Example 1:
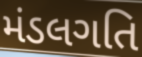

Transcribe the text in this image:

મંડલગતિ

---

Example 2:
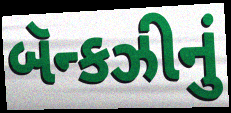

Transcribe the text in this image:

બૅન્કઝીનું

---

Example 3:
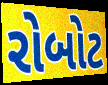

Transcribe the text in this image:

રોબોટ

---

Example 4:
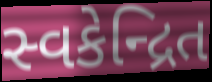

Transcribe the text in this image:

સ્વકેન્દ્રિત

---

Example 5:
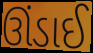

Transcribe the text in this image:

ઊંડાઈ